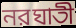
নরঘাতী